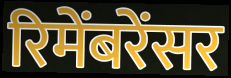
रिमेंबरेंसर